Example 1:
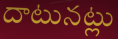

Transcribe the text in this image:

దాటునట్లు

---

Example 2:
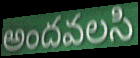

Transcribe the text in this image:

అందవలసి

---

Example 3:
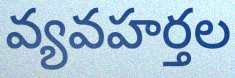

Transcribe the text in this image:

వ్యవహర్తల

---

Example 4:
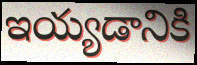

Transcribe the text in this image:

ఇయ్యడానికి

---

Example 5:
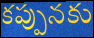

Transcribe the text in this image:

కప్పునకు